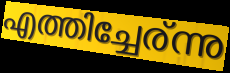
എത്തിച്ചേര്ന്നു